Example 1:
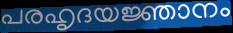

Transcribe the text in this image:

പരഹൃദയജ്ഞാനം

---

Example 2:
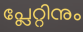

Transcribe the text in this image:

പ്ലേറ്റിനും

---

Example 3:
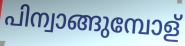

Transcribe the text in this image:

പിന്വാങ്ങുമ്പോള്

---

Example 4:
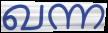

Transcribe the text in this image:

ഖന്ന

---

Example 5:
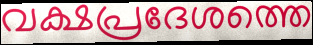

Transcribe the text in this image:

വക്ഷപ്രദേശത്തെ